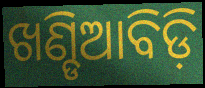
ଖଣ୍ଡିଆବିଡ଼ି